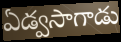
ఏడ్వసాగాడు